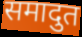
समादुत